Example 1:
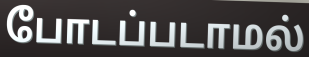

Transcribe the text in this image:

போடப்படாமல்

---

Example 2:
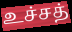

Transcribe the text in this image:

உச்சத்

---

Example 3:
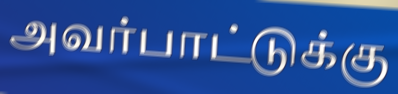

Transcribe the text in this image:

அவர்பாட்டுக்கு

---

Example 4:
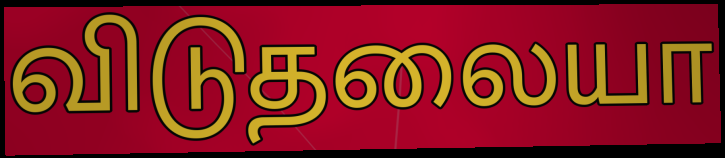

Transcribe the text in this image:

விடுதலையா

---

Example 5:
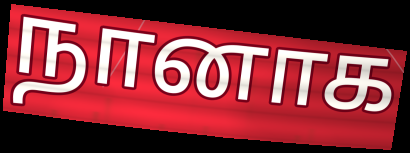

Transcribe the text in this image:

நானாக